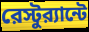
রেস্টুর‍্যান্টে